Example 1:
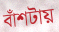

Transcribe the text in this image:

বাঁশটায়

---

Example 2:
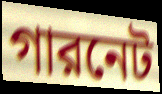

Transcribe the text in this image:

গারনেট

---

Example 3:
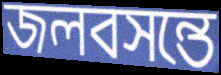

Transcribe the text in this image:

জলবসন্তে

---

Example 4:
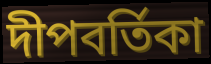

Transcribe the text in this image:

দীপবর্তিকা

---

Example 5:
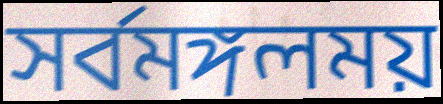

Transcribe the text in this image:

সর্বমঙ্গলময়